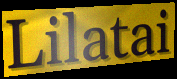
Lilatai